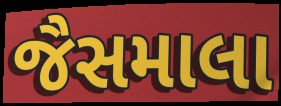
જૈસમાલા